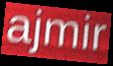
ajmir